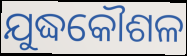
ଯୁଦ୍ଧକୌଶଳ